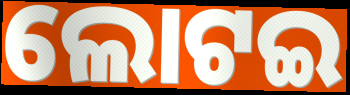
ଲୋଟଇ